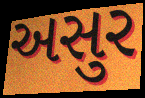
અસુર